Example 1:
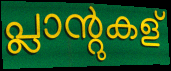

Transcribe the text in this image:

പ്ലാന്റുകള്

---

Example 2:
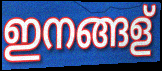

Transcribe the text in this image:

ഇനങ്ങള്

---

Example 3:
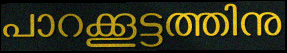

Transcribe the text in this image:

പാറക്കൂട്ടത്തിനു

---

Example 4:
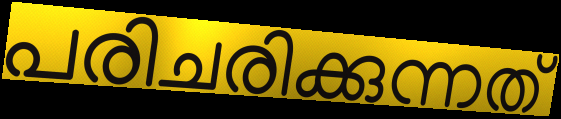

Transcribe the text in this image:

പരിചരിക്കുന്നത്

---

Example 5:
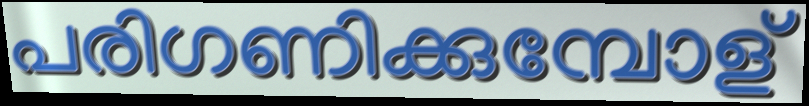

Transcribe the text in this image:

പരിഗണിക്കുമ്പോള്